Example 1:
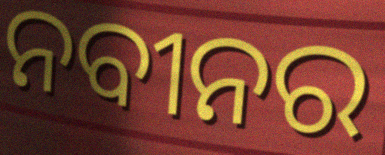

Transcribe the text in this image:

ନବୀନର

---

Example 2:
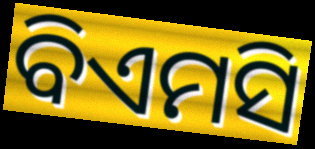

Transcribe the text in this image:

ବିଏମସି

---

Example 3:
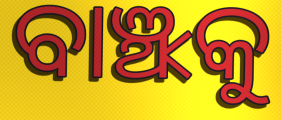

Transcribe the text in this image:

ବାଞ୍ଝକୁ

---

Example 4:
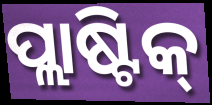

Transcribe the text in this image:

ପ୍ଲାଷ୍ଟିକ୍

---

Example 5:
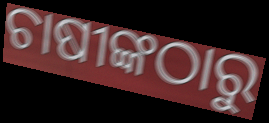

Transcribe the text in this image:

ଚାଷୀଙ୍କଠାରୁ